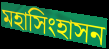
মহাসিংহাসন